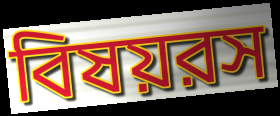
বিষয়রস